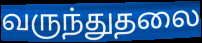
வருந்துதலை